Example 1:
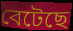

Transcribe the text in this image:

বেটেছে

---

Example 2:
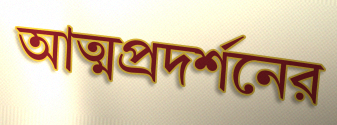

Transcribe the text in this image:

আত্মপ্রদর্শনের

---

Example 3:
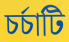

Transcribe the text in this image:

চর্চাটি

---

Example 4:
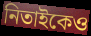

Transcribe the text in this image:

নিতাইকেও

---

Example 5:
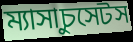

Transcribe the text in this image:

ম্যাসাচুসেটস